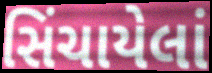
સિંચાયેલાં